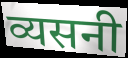
व्यसनी